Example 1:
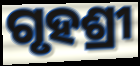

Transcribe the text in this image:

ଗୃହଶ୍ରୀ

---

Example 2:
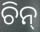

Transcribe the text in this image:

ଚିନ୍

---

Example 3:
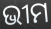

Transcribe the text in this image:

ଭୀମ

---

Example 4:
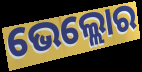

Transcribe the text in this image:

ଭେଲ୍ଲୋର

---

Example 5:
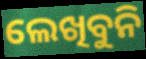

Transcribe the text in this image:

ଲେଖିବୁନି